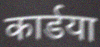
कार्डया